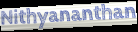
Nithyananthan